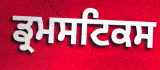
ਡ੍ਰਮਸਟਿਕਸ